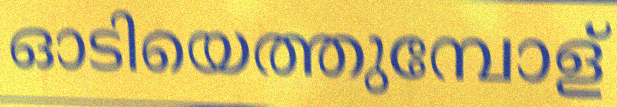
ഓടിയെത്തുമ്പോള്